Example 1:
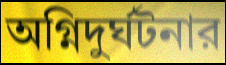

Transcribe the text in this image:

অগ্নিদুর্ঘটনার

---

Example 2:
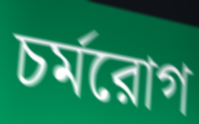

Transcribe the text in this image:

চর্মরোগ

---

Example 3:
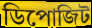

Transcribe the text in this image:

ডিপোজিট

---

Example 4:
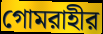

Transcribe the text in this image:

গোমরাহীর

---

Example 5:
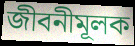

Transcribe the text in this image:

জীবনীমূলক